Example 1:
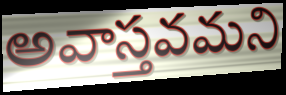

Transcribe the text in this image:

అవాస్తవమని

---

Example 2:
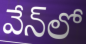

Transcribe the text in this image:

వేన్‌లో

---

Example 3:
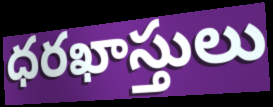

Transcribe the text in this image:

ధరఖాస్తులు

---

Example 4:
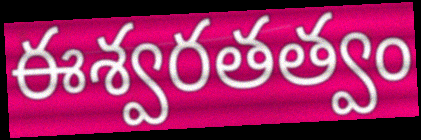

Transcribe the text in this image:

ఈశ్వరతత్వం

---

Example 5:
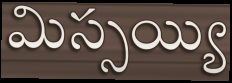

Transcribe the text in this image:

మిస్సయ్యి